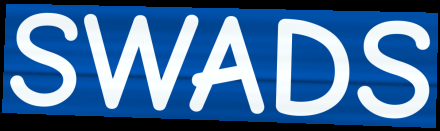
SWADS